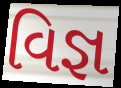
વિજ્ઞ